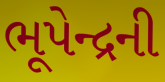
ભૂપેન્દ્રની